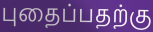
புதைப்பதற்கு